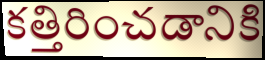
కత్తిరించడానికి